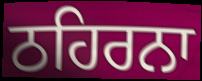
ਠਹਿਰਨਾ